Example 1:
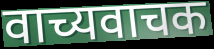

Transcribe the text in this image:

वाच्यवाचक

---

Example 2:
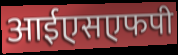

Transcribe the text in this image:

आईएसएफपी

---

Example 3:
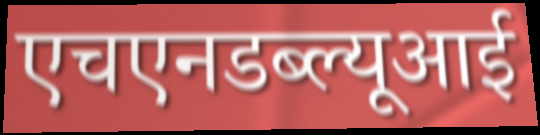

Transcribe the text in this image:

एचएनडब्ल्यूआई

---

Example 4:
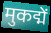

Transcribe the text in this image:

मुकद्में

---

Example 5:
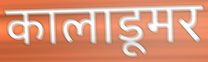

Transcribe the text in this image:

कालाडूमर